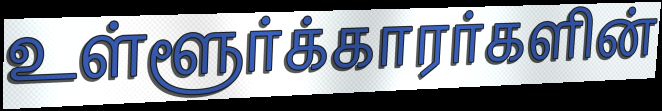
உள்ளூர்க்காரர்களின்